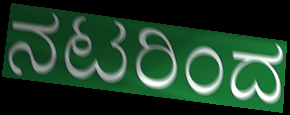
ನಟರಿಂದ